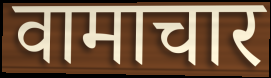
वामाचार